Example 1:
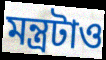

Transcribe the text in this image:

মন্ত্রটাও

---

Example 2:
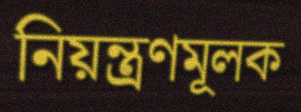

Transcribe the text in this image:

নিয়ন্ত্রণমূলক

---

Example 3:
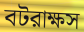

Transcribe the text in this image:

বটরাক্ষস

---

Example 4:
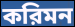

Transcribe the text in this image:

করিমন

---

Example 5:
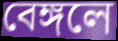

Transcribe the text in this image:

বেঙ্গলে